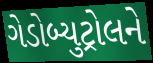
ગેડોબ્યુટ્રોલને